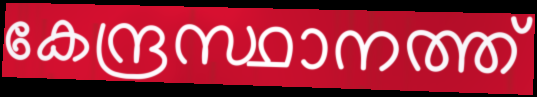
കേന്ദ്രസ്ഥാനത്ത്